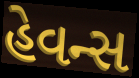
હેવન્સ